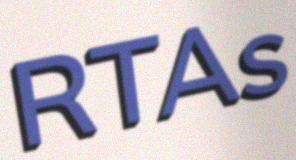
RTAs